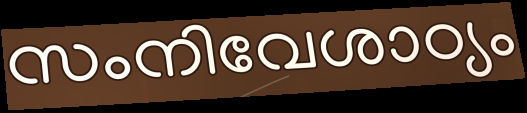
സംനിവേശാഠ്യം